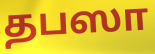
தபஸா